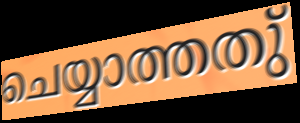
ചെയ്യാത്തതു്